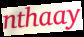
nthaay